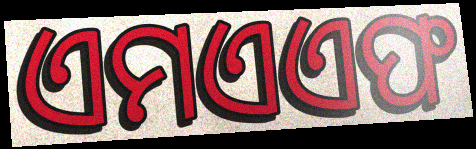
ଏମଏଏଫ